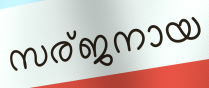
സര്ജനായ